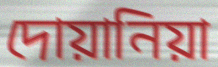
দোয়ানিয়া